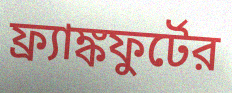
ফ্র্যাঙ্কফুর্টের